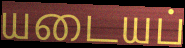
யடையப்